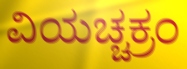
ವಿಯಚ್ಚಕ್ರಂ